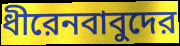
ধীরেনবাবুদের